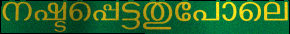
നഷ്ടപ്പെട്ടതുപോലെ